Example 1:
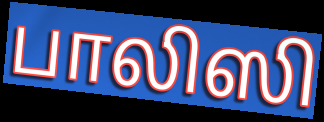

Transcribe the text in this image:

பாலிஸி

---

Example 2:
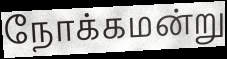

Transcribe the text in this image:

நோக்கமன்று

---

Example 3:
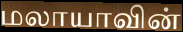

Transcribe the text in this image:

மலாயாவின்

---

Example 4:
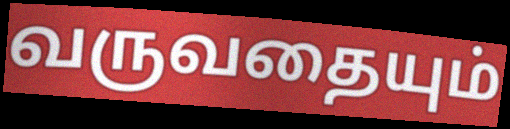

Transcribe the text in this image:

வருவதையும்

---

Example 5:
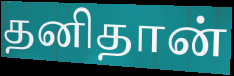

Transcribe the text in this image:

தனிதான்